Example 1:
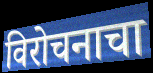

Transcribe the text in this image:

विरोचनाचा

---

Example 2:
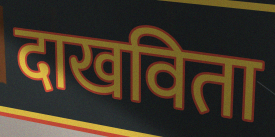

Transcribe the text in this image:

दाखविता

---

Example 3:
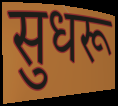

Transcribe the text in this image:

सुधरू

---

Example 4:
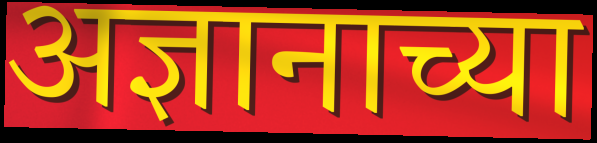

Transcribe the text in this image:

अज्ञानाच्या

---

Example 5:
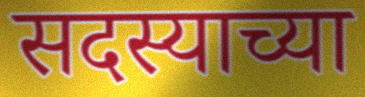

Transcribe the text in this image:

सदस्याच्या